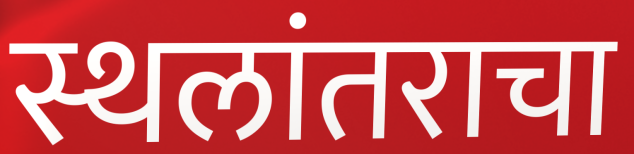
स्थलांतराचा